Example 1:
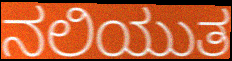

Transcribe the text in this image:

ನಲಿಯುತ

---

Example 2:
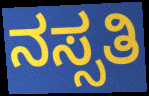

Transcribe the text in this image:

ನಸ್ಸತಿ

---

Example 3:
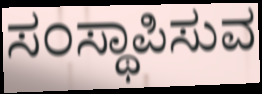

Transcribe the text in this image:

ಸಂಸ್ಥಾಪಿಸುವ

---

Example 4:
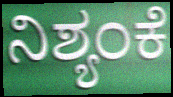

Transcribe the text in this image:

ನಿಶ್ಯಂಕೆ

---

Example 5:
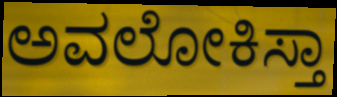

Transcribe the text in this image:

ಅವಲೋಕಿಸ್ತಾ